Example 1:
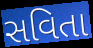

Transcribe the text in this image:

સવિતા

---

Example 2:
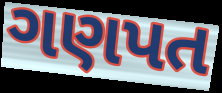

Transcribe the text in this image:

ગણપત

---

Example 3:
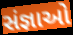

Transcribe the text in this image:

સંજ્ઞાઓ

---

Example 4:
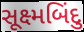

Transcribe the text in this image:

સૂક્ષ્મબિંદુ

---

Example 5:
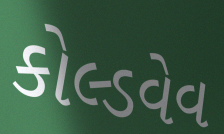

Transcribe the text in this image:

કોલ્ડવેવ